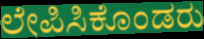
ಲೇಪಿಸಿಕೊಂಡರು